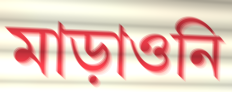
মাড়াওনি